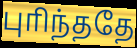
புரிந்ததே